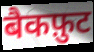
बैकफ़ुट